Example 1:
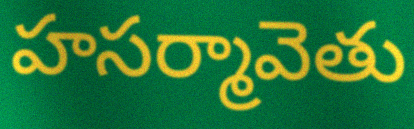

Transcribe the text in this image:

హసర్మావెతు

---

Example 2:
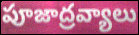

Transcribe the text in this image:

పూజాద్రవ్యాలు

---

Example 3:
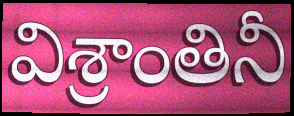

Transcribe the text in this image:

విశ్రాంతినీ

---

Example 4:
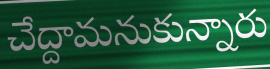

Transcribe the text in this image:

చేద్దామనుకున్నారు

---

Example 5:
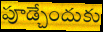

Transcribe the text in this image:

పూడ్చేందుకు